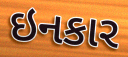
ઇનકાર